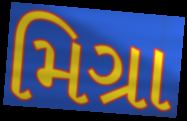
મિગ્રા